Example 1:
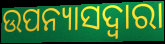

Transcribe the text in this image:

ଉପନ୍ୟାସଦ୍ୱାରା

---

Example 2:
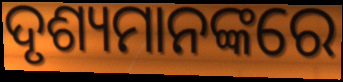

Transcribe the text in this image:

ଦୃଶ୍ୟମାନଙ୍କରେ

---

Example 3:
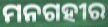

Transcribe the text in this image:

ମନଗହୀର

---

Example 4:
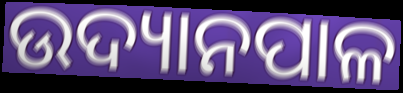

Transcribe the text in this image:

ଉଦ୍ୟାନପାଳ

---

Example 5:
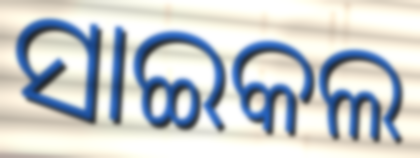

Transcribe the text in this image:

ସାଇକଲ